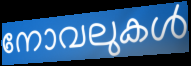
നോവലുകൾ